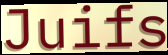
Juifs